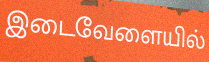
இடைவேளையில்